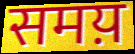
समय़